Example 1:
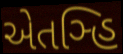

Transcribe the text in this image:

એતઞ્હિ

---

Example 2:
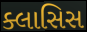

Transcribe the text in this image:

ક્લાસિસ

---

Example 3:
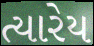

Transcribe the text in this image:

ત્યારેય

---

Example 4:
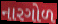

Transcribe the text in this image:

નારગોળ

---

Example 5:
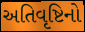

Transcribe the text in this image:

અતિવૃષ્ટિનો